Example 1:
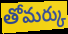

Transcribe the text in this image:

తోమర్కు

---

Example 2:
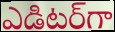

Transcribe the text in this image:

ఎడిటర్‌గా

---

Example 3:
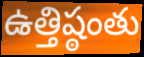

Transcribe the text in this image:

ఉత్తిష్ఠంతు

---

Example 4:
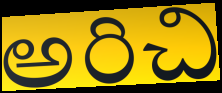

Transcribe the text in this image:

అరిచి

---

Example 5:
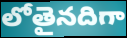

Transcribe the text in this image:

లోతైనదిగా